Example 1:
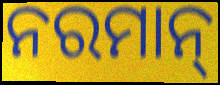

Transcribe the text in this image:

ନରମାନ୍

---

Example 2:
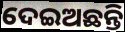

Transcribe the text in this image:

ଦେଇଅଛନ୍ତି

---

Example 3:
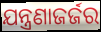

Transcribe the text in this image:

ଯନ୍ତ୍ରଣାଜର୍ଜର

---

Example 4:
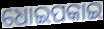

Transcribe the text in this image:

ଧୋଇପକାଇ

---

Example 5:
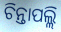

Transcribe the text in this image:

ଚିନ୍ତାପଲ୍ଲି